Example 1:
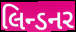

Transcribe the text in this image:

લિન્ડનર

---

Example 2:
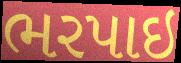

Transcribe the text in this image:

ભરપાઇ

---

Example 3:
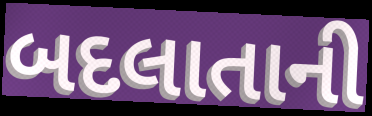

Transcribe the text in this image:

બદલાતાની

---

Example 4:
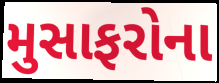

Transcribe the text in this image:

મુસાફરોના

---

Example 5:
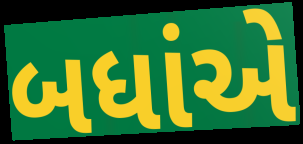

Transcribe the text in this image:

બધાંએ